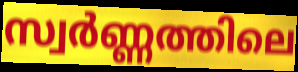
സ്വർണ്ണത്തിലെ